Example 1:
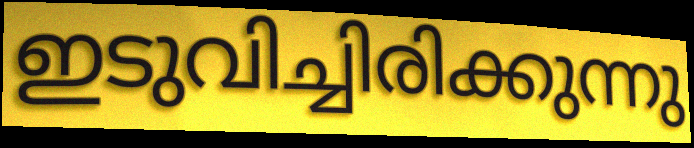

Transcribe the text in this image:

ഇടുവിച്ചിരിക്കുന്നു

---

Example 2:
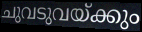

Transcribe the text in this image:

ചുവടുവയ്ക്കും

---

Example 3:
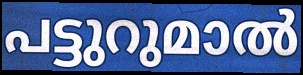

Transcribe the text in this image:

പട്ടുറുമാൽ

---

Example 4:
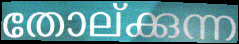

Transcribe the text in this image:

തോല്ക്കുന്ന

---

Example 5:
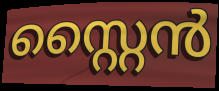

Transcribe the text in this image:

സ്റ്റൈൻ